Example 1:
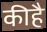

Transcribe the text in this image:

कीहै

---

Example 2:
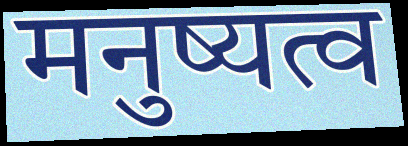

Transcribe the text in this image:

मनुष्यत्‍व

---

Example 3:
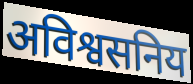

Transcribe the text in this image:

अविश्वसनिय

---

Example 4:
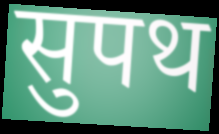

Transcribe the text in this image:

सुपथ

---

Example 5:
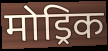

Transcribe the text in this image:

मोड्रिक